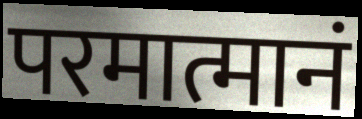
परमात्मानं